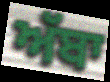
ਅੱਬਾ